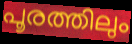
പൂരത്തിലും